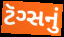
ટૅગ્સનું